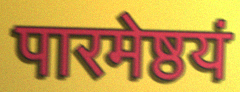
पारमेष्ठयं